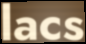
lacs